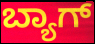
ಬ್ಯಾಗ್